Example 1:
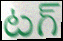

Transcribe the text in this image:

టగ్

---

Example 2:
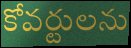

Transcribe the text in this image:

కోవర్టులను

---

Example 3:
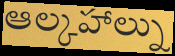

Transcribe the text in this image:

ఆల్కహాల్ను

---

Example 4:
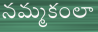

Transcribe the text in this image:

నమ్మకంలా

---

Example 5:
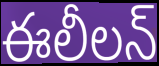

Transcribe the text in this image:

ఈలీలన్